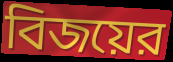
বিজয়ের